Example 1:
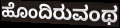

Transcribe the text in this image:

ಹೊಂದಿರುವಂಥ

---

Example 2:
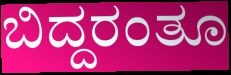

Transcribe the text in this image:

ಬಿದ್ದರಂತೂ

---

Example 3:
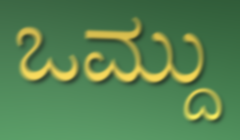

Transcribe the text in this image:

ಒಮ್ದು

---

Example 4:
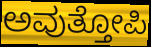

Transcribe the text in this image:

ಅವುತ್ತೋಪಿ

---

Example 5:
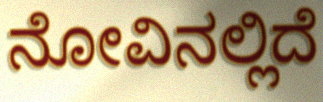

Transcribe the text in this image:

ನೋವಿನಲ್ಲಿದೆ